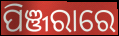
ପିଞ୍ଜରାରେ